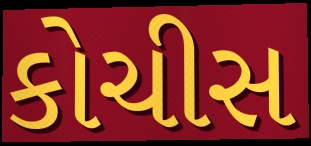
કોચીસ